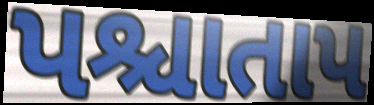
પશ્ચાતાપ